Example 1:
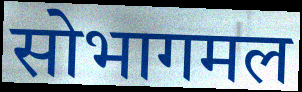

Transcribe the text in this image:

सोभागमल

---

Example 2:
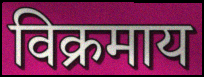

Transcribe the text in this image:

विक्रमाय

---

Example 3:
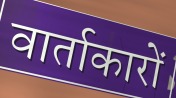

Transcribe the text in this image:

वार्ताकारों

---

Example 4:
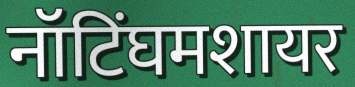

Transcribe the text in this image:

नॉटिंघमशायर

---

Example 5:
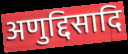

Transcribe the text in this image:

अणुद्दिसादि